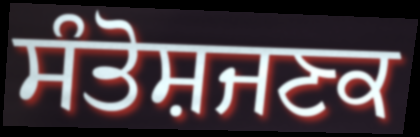
ਸੰਤੋਸ਼ਜਣਕ